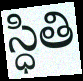
స్ధితి